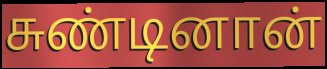
சுண்டினான்